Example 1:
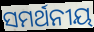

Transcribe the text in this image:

ସମର୍ଥନୀୟ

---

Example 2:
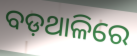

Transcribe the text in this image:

ବଡ଼ଥାଳିରେ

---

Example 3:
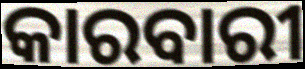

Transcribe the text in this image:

କାରବାରୀ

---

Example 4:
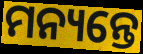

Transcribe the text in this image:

ମନ୍ୟନ୍ତେ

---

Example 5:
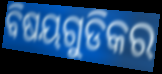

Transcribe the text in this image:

ବିଷୟଗୁଡିକର